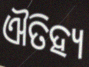
ଐତିହ୍ଯ